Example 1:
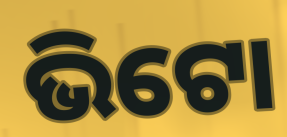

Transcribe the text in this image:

ଭିଟୋ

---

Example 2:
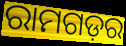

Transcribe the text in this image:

ରାମଗଡ଼ର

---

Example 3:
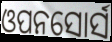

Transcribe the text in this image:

ଓପନସୋର୍ସ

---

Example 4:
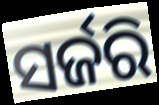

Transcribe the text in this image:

ସର୍ଜରି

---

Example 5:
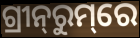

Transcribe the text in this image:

ଗ୍ରୀନ୍‌ରୁମ୍‌ରେ